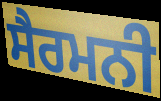
ਸੈਰਮਨੀ